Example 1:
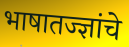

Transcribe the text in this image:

भाषातज्ज्ञांचे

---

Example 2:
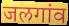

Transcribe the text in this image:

जलगांव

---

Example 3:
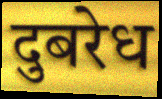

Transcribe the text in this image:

दुबरेध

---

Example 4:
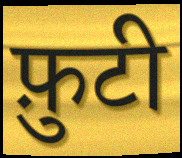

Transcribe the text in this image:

फ़ुटी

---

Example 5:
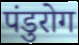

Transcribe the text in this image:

पंडुरोग